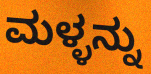
ಮಳ್ಳನ್ನು